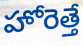
హోరెత్తే